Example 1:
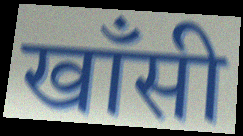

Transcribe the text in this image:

खाँसी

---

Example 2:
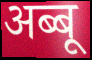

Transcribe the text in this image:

अब्बू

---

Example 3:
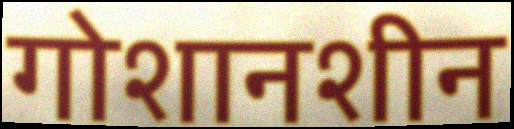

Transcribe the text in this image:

गोशानशीन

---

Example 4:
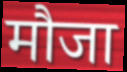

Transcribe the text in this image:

मौजा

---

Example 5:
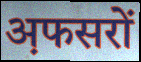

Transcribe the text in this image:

अ़फसरों